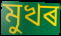
মুখৰ